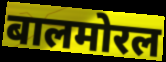
बालमोरल